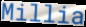
Millia